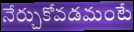
నేర్చుకోవడమంటే